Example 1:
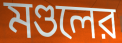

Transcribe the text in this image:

মণ্ডলের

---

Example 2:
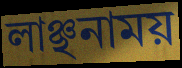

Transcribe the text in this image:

লাঞ্ছনাময়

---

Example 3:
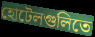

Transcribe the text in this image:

হোটেলগুলিতে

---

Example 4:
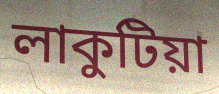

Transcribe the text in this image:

লাকুটিয়া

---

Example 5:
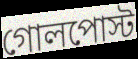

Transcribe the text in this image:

গোলপোস্ট